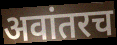
अवांतरच